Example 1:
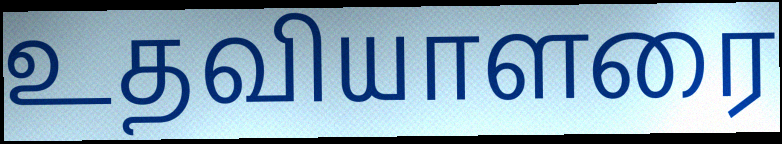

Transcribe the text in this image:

உதவியாளரை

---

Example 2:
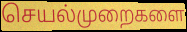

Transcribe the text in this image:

செயல்முறைகளை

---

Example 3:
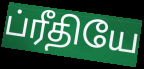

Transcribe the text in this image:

ப்ரீதியே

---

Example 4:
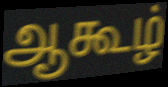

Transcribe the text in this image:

ஆகூழ்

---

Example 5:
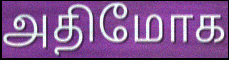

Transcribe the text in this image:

அதிமோக